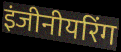
इंजीनीयरिंग